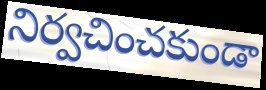
నిర్వచించకుండా